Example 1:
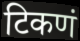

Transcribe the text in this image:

टिकणं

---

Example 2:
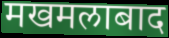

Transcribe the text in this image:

मखमलाबाद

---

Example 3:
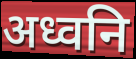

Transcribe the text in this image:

अध्वनि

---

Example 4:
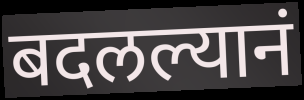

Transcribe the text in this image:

बदलल्यानं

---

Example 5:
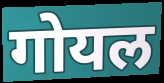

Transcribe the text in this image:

गोयल